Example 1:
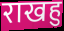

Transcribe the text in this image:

राखहु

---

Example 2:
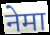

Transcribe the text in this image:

नेमा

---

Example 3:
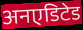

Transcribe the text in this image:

अनएडिटेड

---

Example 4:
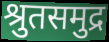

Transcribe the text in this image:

श्रुतसमुद्र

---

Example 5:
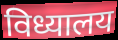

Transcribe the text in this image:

विध्यालय